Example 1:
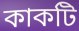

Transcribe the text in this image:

কাকটি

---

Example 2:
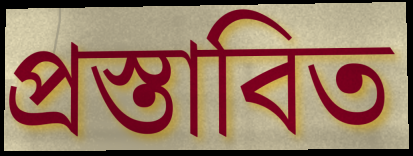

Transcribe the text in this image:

প্রস্তাবিত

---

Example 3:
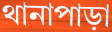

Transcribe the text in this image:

থানাপাড়া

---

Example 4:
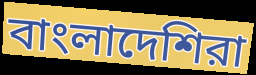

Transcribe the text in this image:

বাংলাদেশিরা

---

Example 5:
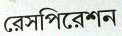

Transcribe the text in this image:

রেসপিরেশন